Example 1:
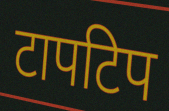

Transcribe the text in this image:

टापटिप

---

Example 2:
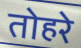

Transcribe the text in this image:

तोहरे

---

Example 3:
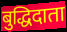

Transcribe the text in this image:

बुद्धिदाता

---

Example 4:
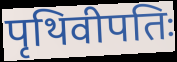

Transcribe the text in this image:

पृथिवीपतिः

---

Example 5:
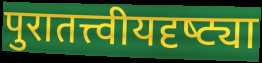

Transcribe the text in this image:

पुरातत्त्वीयदृष्ट्या